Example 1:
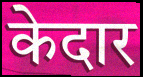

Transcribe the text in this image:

केदार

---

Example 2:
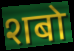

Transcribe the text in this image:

शबो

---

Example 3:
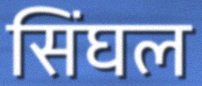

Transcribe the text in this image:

सिंघल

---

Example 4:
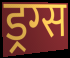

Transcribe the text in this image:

ड्रग्‍स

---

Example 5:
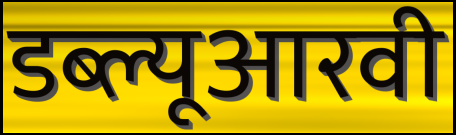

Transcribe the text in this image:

डब्ल्यूआरवी